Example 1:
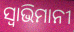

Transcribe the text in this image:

ସ୍ବାଭିମାନୀ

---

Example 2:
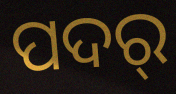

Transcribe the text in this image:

ପଦର୍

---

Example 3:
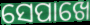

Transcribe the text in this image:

ସେପାଖେ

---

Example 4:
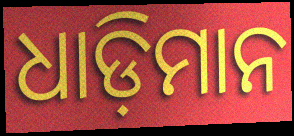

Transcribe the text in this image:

ଧାଡ଼ିମାନ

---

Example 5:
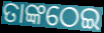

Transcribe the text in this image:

ତାଙ୍କଠେଇ